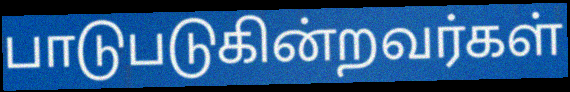
பாடுபடுகின்றவர்கள்